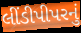
લીંડીપીપરનું